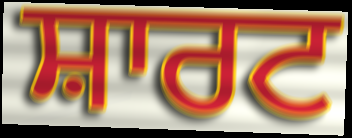
ਸ਼ਾਰਟ